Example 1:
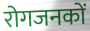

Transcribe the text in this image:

रोगजनकों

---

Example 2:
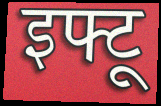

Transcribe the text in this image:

इफ्टू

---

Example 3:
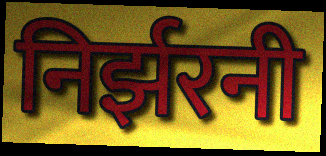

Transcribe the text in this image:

निर्झरनी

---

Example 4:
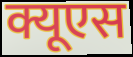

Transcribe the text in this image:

क्यूएस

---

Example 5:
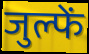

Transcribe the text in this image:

जुल्फें